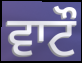
ਵਾਟੌ